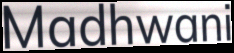
Madhwani